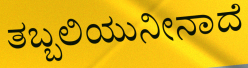
ತಬ್ಬಲಿಯುನೀನಾದೆ